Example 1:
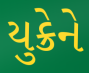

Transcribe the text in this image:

યુક્રેને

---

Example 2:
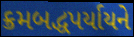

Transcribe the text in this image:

ક્રમબદ્ધપર્યાયને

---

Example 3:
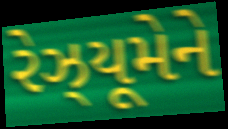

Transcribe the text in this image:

રેઝ્યૂમેને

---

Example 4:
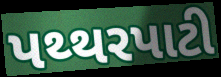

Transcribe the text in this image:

પથ્થરપાટી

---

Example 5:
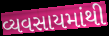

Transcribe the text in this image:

વ્યવસાયમાંથી